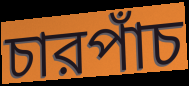
চারপাঁচ